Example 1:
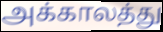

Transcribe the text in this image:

அக்காலத்து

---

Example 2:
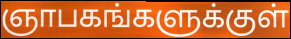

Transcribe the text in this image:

ஞாபகங்களுக்குள்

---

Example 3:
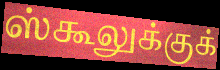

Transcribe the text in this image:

ஸ்கூலுக்குக்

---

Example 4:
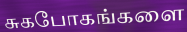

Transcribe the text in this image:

சுகபோகங்களை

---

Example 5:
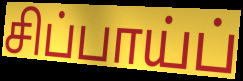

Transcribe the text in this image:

சிப்பாய்ப்